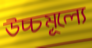
উচ্চমূল্যে